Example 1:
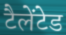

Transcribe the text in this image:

टैलेंटेड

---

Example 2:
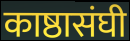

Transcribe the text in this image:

काष्ठासंघी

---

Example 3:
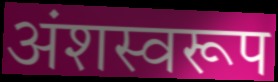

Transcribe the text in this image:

अंशस्वरूप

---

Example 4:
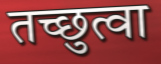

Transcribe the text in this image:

तच्छुत्वा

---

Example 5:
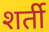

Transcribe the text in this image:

शर्ती